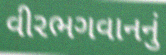
વીરભગવાનનું